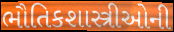
ભૌતિકશાસ્ત્રીઓની